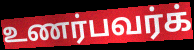
உணர்பவர்க்